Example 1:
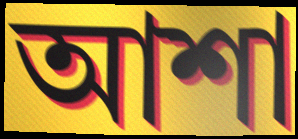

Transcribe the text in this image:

আশা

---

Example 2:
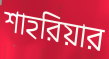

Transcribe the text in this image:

শাহরিয়ার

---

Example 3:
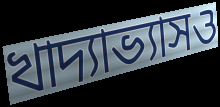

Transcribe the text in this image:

খাদ্যাভ্যাসও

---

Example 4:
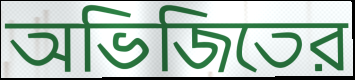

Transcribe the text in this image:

অভিজিতের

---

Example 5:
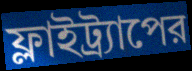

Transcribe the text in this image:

ফ্লাইট্র্যাপের